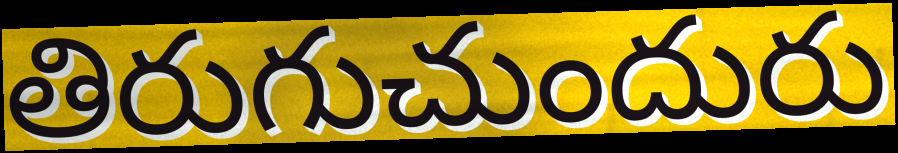
తిరుగుచుందురు